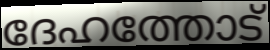
ദേഹത്തോട്